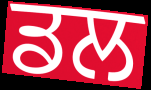
ਡਲ